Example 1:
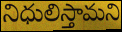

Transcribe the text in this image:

నిధులిస్తామని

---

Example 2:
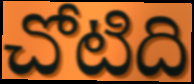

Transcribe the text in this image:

చోటిది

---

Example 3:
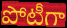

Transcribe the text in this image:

పోటీగా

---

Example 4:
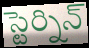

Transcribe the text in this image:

స్టెర్నిన్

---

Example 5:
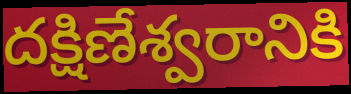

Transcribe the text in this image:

దక్షిణేశ్వరానికి